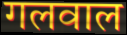
गलवाल